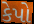
કેપો